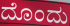
ದೊಂದು